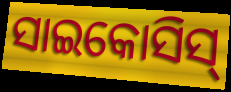
ସାଇକୋସିସ୍